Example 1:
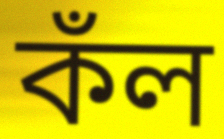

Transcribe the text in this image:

কঁল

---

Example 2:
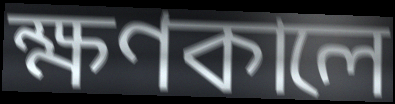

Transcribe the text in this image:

ক্ষণকালে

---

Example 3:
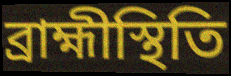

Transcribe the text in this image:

ব্রাহ্মীস্থিতি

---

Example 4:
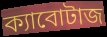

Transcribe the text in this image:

ক্যাবোটাজ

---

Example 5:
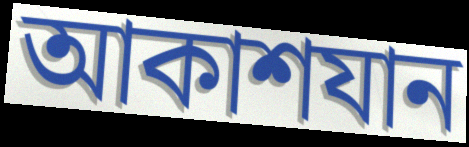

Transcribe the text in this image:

আকাশযান